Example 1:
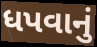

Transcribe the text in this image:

ધપવાનું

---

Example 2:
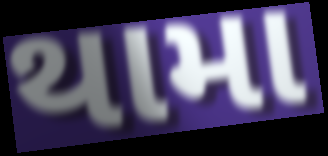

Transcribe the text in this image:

થામા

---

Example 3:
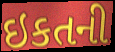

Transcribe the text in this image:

ઇકતની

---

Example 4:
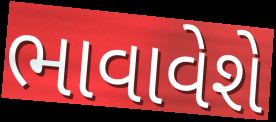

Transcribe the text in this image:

ભાવાવેશે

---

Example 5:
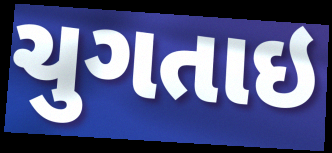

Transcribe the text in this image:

ચુગતાઇ